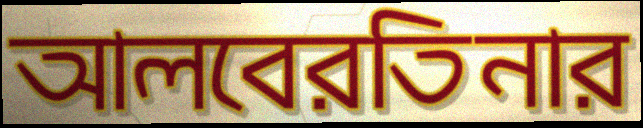
আলবেরতিনার